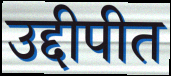
उद्दीपीत